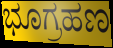
ಭೂಗ್ರಹಣ